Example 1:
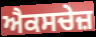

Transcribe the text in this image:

ਐਕਸਚੇਜ਼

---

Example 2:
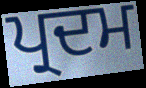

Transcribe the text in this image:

ਪ੍ਰਦਮ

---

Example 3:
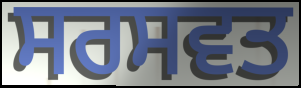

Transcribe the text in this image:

ਸਰਸਵਤ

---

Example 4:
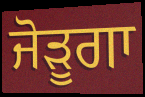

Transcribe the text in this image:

ਜੋੜੂਗਾ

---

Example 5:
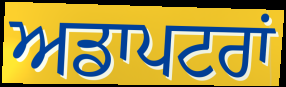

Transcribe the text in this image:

ਅਡਾਪਟਰਾਂ